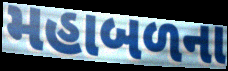
મહાબળના